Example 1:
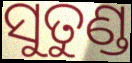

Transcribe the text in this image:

ସୁତୁଣ୍ଡ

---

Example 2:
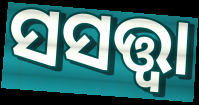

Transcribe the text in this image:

ସସତ୍ତ୍ୱା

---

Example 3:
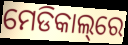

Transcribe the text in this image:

ମେଡିକାଲ୍‌ରେ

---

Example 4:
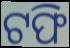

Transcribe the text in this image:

ଟଫି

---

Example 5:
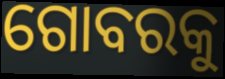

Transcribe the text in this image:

ଗୋବରକୁ